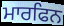
ਮਾਰਫਿਨ